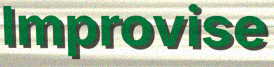
Improvise